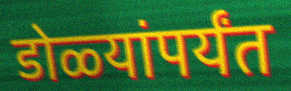
डोळ्यांपर्यंत